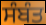
ਸੰਬੰਤ